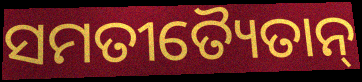
ସମତୀତ୍ୟୈତାନ୍